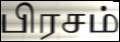
பிரசம்